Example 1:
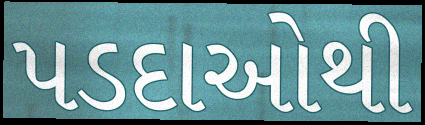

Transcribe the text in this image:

પડદાઓથી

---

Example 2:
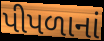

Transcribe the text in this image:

પીપળાનાં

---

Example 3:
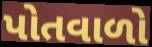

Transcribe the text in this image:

પોતવાળો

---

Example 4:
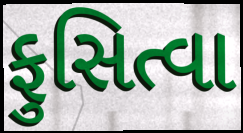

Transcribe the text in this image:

ફુસિત્વા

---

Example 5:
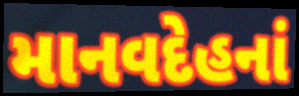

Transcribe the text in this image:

માનવદેહનાં